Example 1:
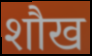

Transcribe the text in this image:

शौख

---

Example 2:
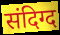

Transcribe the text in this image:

संदिग्द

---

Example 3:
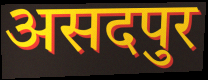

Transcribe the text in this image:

असदपुर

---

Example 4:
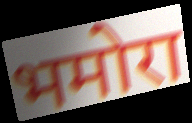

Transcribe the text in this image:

भमोरा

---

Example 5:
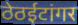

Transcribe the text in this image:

ठेठईटांगर